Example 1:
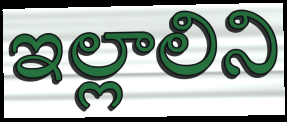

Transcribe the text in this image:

ఇల్లాలిని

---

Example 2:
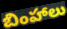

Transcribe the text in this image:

బింహాలు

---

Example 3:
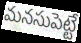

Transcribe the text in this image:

మనసుపెట్టే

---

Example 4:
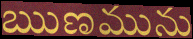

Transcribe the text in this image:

ఋణమును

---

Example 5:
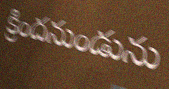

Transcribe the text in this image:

క్రిందనుండును